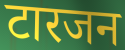
टारजन